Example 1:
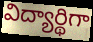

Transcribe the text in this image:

విద్యార్థిగా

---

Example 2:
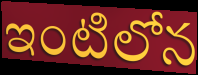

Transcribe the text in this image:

ఇంటిలోన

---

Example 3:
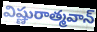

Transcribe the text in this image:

విష్ణురాత్మవాన్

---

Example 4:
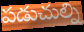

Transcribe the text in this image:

పడుచుల్ని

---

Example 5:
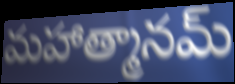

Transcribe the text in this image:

మహాత్మానమ్